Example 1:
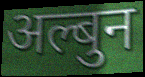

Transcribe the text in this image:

अल्बुन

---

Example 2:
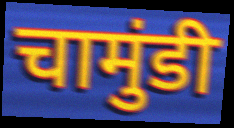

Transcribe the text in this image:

चामुंडी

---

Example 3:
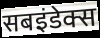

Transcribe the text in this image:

सबइंडेक्स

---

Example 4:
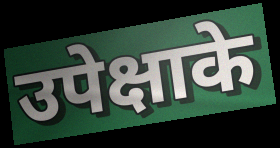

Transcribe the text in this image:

उपेक्षाके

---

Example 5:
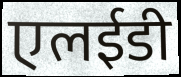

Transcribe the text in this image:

एलईडी